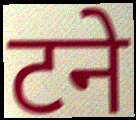
टने